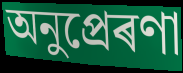
অনুপ্ৰেৰণা